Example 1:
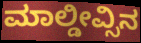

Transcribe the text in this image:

ಮಾಲ್ಡೀವ್ಸಿನ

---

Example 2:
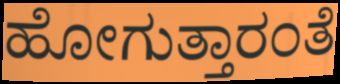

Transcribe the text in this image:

ಹೋಗುತ್ತಾರಂತೆ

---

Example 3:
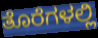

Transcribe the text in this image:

ತೊರೆಗಳಲ್ಲಿ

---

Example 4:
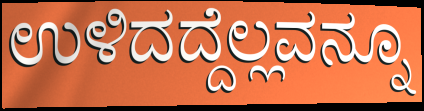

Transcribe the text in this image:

ಉಳಿದದ್ದೆಲ್ಲವನ್ನೂ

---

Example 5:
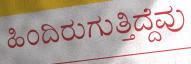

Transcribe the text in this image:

ಹಿಂದಿರುಗುತ್ತಿದ್ದೆವು